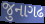
જુનાગઢ